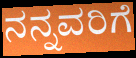
ನನ್ನವರಿಗೆ